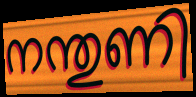
നന്തുണി